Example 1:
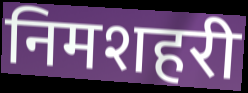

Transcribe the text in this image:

निमशहरी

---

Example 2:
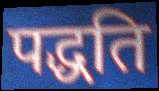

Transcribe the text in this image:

पद्धति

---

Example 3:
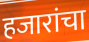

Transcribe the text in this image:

हजारांचा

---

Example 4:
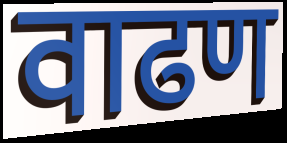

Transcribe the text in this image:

वाढण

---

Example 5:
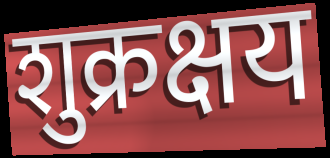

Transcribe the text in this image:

शुक्रक्षय